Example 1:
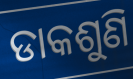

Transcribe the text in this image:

ଡାକଶୁଣି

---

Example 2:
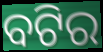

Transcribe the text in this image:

ବଟିର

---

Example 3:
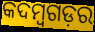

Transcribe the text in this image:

କଦମ୍ବଗଡ଼ର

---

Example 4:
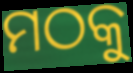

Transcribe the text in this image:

ମଠକୁ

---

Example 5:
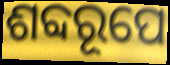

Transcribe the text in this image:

ଶବ୍ଦରୂପେ